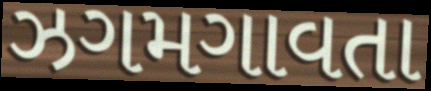
ઝગમગાવતા